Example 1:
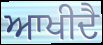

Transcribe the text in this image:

ਆਖੀਦੈ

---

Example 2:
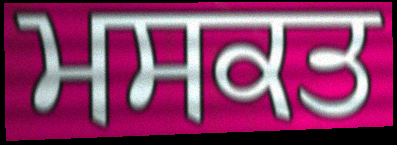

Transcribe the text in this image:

ਮਸਕਤ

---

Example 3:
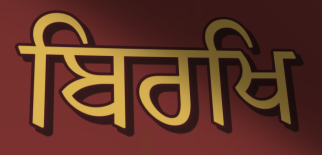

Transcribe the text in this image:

ਬਿਰਖਿ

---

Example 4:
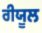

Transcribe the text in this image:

ਰੀਯੂਲ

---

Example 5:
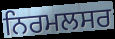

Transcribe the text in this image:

ਨਿਰਮਲਸਰ